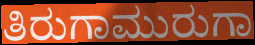
ತಿರುಗಾಮುರುಗಾ